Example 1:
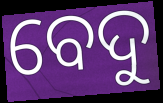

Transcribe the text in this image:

ବେଦୁ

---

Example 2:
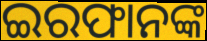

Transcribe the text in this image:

ଇରଫାନଙ୍କ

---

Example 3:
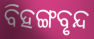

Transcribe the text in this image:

ବିହଙ୍ଗବୃନ୍ଦ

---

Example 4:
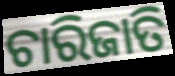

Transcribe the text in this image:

ଚାରିଜାତି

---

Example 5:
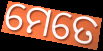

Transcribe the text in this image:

ମେତେ